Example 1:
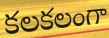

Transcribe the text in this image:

కలకలంగా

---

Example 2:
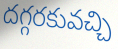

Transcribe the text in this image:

దగ్గరకువచ్చి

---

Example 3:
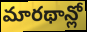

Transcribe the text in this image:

మారథాన్లో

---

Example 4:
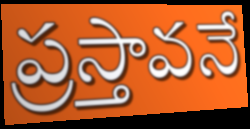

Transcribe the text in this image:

ప్రస్తావనే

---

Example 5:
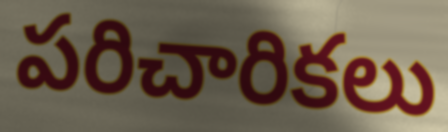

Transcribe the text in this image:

పరిచారికలు